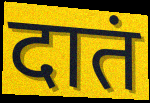
दातं